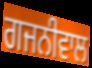
ਗਜਨੀਵਾਲ